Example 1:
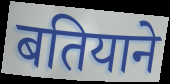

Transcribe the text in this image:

बतियाने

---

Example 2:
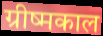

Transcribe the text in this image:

ग्रीष्मकाल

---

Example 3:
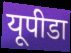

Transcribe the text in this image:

यूपीडा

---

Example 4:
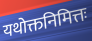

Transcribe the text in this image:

यथोक्तनिमित्तः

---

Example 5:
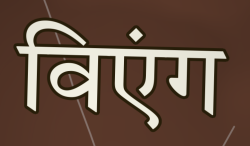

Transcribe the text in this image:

विएंग